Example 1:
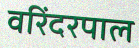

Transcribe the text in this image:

वरिंदरपाल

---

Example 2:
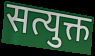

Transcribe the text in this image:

सत्युक्त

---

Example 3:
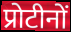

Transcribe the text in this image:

प्रोटीनों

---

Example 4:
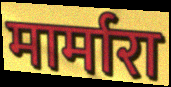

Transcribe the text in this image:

मार्मारा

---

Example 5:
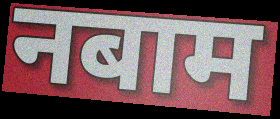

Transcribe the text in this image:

नबाम